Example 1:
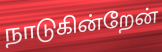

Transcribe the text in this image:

நாடுகின்றேன்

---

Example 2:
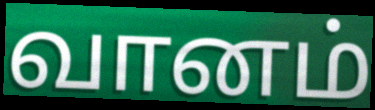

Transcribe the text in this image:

வானம்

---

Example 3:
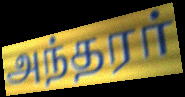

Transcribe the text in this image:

அந்தரர்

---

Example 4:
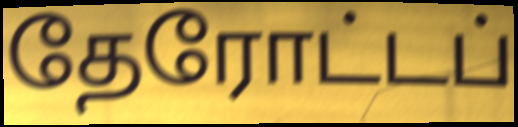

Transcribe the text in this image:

தேரோட்டப்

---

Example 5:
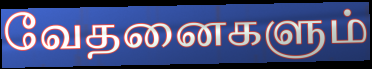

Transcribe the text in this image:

வேதனைகளும்